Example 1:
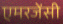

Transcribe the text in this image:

एमरजेंसी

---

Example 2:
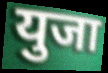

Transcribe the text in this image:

युजा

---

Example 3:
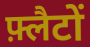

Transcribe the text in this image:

फ़्लैटों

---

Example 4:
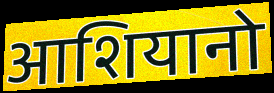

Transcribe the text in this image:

आशियानो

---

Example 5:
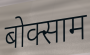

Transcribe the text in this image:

बोक्साम